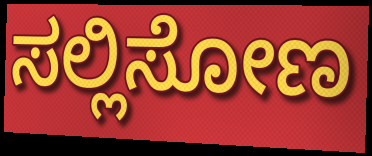
ಸಲ್ಲಿಸೋಣ